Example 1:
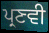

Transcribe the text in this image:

ਪ੍ਰਣਵੀ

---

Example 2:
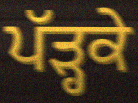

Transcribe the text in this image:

ਪੱੜ੍ਹਕੇ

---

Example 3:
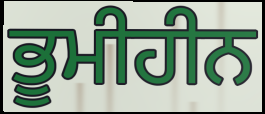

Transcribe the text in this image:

ਭੂਮੀਹੀਨ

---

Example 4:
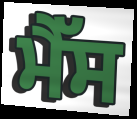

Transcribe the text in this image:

ਮੈੱਸ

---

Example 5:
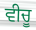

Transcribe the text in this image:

ਵੀਚੂ